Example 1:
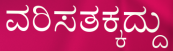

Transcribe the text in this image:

ವರಿಸತಕ್ಕದ್ದು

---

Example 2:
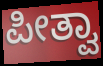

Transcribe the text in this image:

ಪೀತ್ವಾ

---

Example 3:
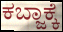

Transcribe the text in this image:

ಕಬ್ಜಾಕ್ಕೆ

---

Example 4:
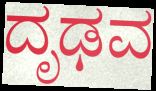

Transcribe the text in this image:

ದೃಢವ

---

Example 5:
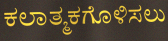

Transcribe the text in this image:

ಕಲಾತ್ಮಕಗೊಳಿಸಲು